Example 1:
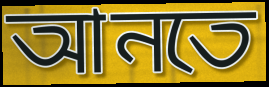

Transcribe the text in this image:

আনতে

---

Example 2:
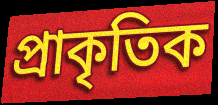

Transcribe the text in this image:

প্রাকৃতিক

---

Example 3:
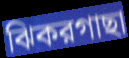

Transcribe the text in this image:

ঝিকরগাছা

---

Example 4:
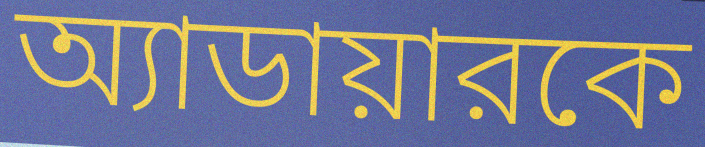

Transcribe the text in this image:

অ্যাডায়ারকে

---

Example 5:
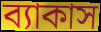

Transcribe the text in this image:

ব্যাকাস